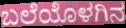
ಬಲೆಯೊಳಗಿನ